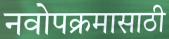
नवोपक्रमासाठी